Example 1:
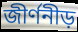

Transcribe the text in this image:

জীর্ণনীড়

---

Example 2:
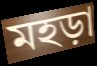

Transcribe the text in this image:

মহড়া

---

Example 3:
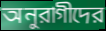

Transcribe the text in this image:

অনুরাগীদের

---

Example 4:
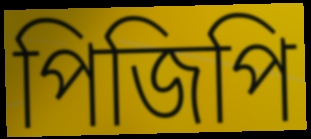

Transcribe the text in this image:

পিজিপি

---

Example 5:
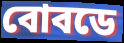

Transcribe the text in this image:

বোবডে